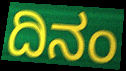
ದಿನಂ